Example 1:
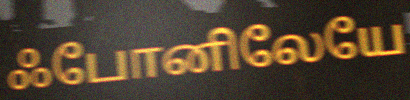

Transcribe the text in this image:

ஃபோனிலேயே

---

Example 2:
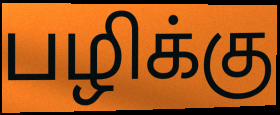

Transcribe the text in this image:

பழிக்கு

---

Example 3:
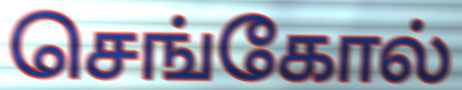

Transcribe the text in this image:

செங்கோல்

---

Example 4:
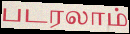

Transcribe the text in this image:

படரலாம்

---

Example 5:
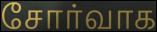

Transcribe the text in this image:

சோர்வாக